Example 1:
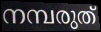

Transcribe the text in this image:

നമ്പരുത്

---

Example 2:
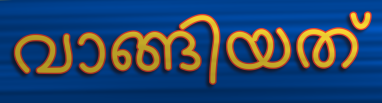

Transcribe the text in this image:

വാങ്ങിയത്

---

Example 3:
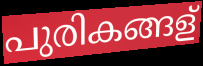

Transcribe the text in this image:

പുരികങ്ങള്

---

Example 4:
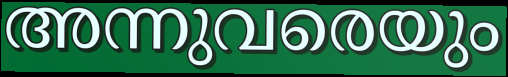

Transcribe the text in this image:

അന്നുവരെയും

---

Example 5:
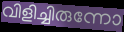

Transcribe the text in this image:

വിളിച്ചിരുന്നോ